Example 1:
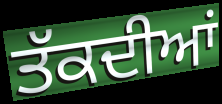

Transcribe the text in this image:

ਤੱਕਦੀਆਂ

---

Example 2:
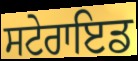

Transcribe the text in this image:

ਸਟੇਰਾਇਡ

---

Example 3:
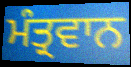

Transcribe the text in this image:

ਮੰਤ੍ਰਵਾਨ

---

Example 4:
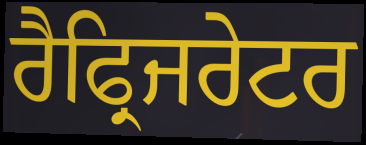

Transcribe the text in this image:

ਰੈਫ੍ਰਿਜਰੇਟਰ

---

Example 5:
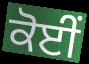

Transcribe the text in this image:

ਕੋਈਂ